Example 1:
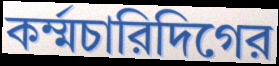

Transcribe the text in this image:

কর্ম্মচারিদিগের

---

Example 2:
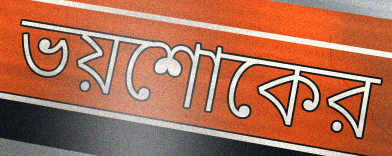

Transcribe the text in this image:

ভয়শোকের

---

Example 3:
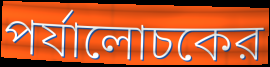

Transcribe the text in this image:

পর্যালোচকের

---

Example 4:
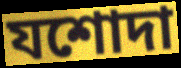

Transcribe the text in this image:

যশোদা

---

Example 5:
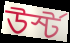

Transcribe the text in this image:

উর্স্ট